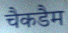
चैकडैम